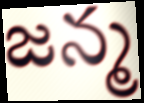
జన్మ